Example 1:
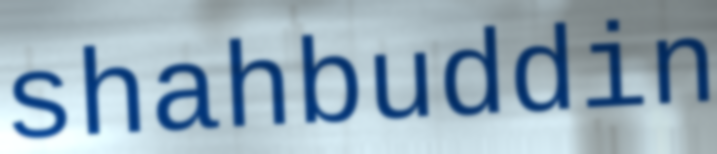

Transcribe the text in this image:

shahbuddin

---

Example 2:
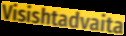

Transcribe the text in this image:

Visishtadvaita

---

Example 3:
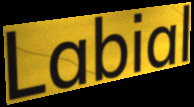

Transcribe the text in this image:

Labial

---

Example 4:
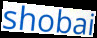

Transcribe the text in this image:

shobai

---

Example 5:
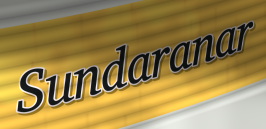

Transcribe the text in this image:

Sundaranar